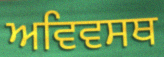
ਅਵਿਵਸਥ